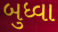
બુધ્વા